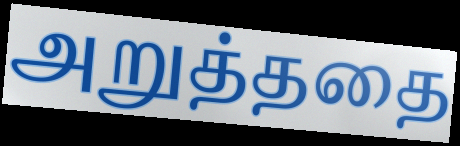
அறுத்ததை